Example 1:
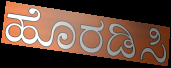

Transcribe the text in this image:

ಹೊರಡಿಸಿ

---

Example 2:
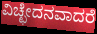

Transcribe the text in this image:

ವಿಚ್ಛೇದನವಾದರೆ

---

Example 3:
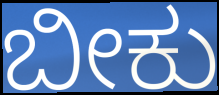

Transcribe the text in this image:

ಬೀಕು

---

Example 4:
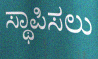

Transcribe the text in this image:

ಸ್ಥಾಪಿಸಲು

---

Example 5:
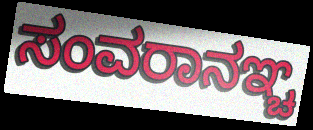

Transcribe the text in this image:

ಸಂವರಾನಞ್ಚ